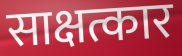
साक्षत्कार